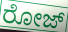
ರೋಜ್